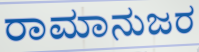
ರಾಮಾನುಜರ